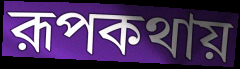
রূপকথায়